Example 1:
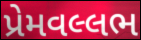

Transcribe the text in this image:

પ્રેમવલ્લભ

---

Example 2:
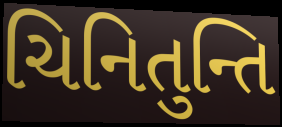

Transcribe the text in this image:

ચિનિતુન્તિ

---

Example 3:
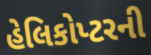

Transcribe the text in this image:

હેલિકોપ્ટરની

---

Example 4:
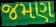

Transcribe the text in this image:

જમણ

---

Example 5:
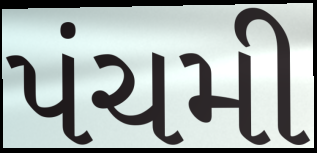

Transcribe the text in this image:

પંચમી